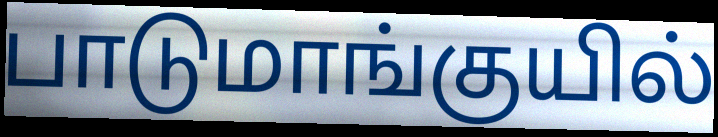
பாடுமாங்குயில்